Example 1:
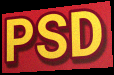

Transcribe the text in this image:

PSD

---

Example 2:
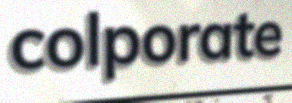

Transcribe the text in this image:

colporate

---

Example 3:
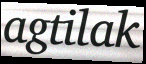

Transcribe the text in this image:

agtilak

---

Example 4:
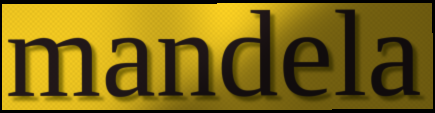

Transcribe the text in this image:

mandela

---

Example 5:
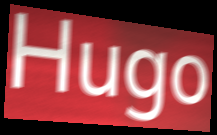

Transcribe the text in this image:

Hugo